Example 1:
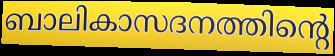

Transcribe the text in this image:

ബാലികാസദനത്തിന്റെ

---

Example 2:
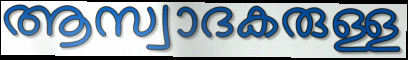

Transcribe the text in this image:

ആസ്വാദകരുള്ള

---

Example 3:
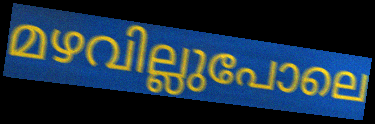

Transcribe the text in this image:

മഴവില്ലുപോലെ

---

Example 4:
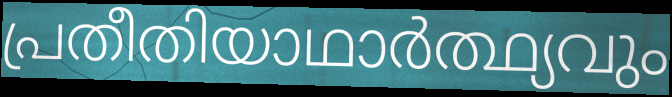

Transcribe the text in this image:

പ്രതീതിയാഥാർത്ഥ്യവും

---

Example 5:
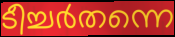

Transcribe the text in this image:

ടീച്ചർതന്നെ